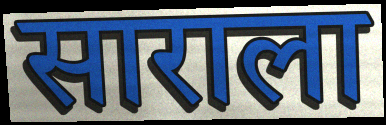
साराला